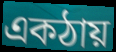
একঠায়